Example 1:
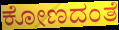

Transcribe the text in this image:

ಕೋಣದಂತೆ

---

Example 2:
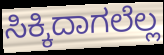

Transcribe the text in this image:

ಸಿಕ್ಕಿದಾಗಲೆಲ್ಲ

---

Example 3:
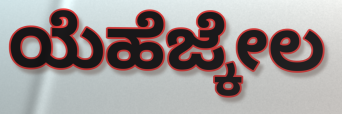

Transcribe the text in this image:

ಯೆಹೆಜ್ಕೇಲ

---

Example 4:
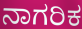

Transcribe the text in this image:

ನಾಗರಿಕ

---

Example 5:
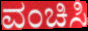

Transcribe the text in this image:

ವಂಚಿಸಿ